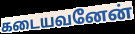
கடையவனேன்